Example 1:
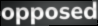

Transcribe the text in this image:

opposed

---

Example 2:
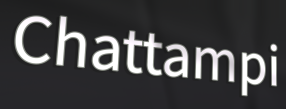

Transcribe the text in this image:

Chattampi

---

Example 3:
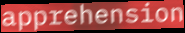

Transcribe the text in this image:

apprehension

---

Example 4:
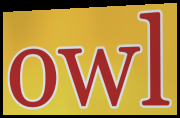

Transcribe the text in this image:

owl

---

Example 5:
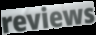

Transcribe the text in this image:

reviews